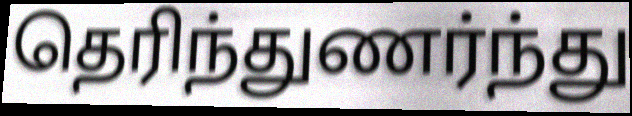
தெரிந்துணர்ந்து